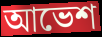
আভেশ